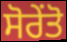
ਸੋਰੇਂਤੋ